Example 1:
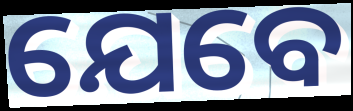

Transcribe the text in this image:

ଯେବେ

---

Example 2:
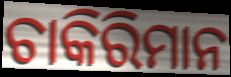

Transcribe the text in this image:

ଚାକିରିମାନ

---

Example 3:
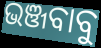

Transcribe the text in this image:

ଭଞ୍ଜବାବୁ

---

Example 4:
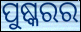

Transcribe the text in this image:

ପୁଷ୍କରର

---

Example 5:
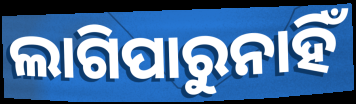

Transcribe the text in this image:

ଲାଗିପାରୁନାହିଁ